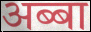
अब्बा